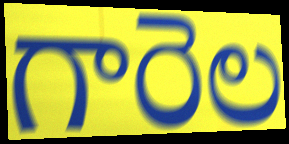
గారెల